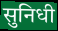
सुनिधी